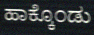
ಹಾಕ್ಕೊಂಡು